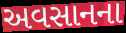
અવસાનના